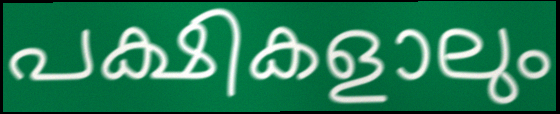
പക്ഷികളാലും